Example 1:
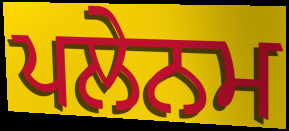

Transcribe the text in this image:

ਪਲੇਨਮ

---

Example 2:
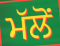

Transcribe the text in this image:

ਮੱਲੋਂ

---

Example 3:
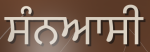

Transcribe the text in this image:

ਸੰਨਆਸੀ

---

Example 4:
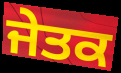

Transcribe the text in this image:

ਜੇਤਕ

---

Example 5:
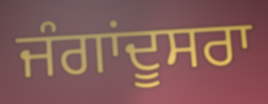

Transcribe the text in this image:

ਜੰਗਾਂਦੂਸਰਾ